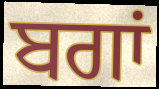
ਬਗਾਂ